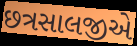
છત્રસાલજીએ